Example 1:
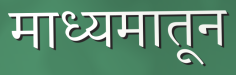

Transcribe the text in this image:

माध्यमातून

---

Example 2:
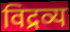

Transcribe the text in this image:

विद्रव्य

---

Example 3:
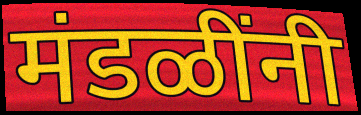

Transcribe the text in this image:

मंडळींनी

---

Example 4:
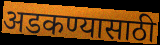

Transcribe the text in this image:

अडकण्यासाठी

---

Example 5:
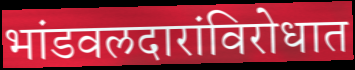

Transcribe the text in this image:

भांडवलदारांविरोधात